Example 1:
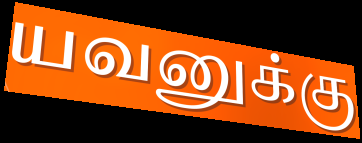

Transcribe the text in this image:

யவனுக்கு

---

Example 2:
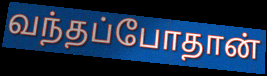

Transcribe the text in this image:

வந்தப்போதான்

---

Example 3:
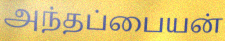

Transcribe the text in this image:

அந்தப்பையன்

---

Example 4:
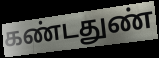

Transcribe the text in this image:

கண்டதுண்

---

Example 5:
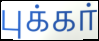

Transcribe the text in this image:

புக்கர்